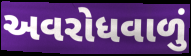
અવરોધવાળું